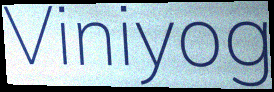
Viniyog